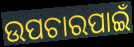
ଉପଚାରପାଇଁ